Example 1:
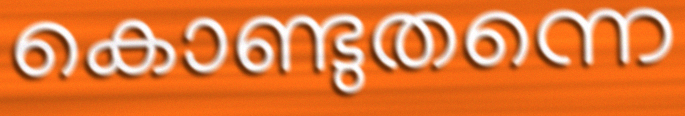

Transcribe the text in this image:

കൊണ്ടുതന്നെ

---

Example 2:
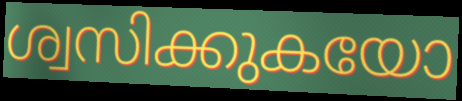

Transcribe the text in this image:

ശ്വസിക്കുകയോ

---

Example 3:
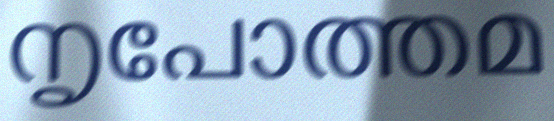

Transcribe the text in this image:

നൃപോത്തമ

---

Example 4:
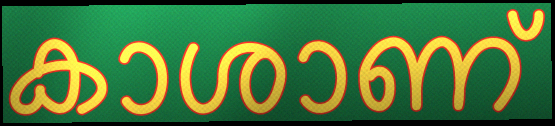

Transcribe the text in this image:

കാശാണ്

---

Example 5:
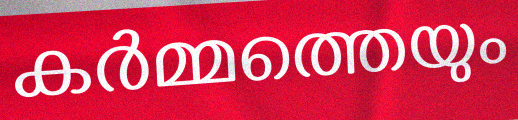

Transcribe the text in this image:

കർമ്മത്തെയും